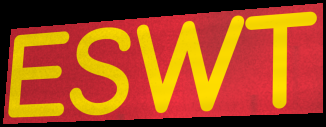
ESWT